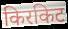
किरकिट